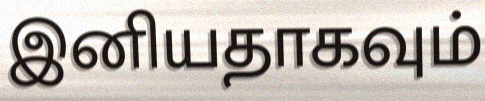
இனியதாகவும்